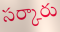
సర్కారు